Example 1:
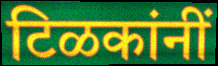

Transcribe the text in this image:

टिळकांनीं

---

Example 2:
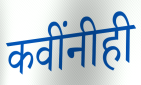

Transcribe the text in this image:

कवींनीही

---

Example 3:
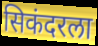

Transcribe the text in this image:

सिकंदरला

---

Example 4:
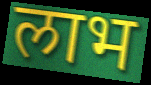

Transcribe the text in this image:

लाभ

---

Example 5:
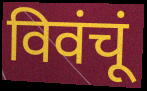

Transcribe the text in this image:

विवंचूं